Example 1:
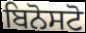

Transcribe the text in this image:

ਬਿਨੋਸਟੋ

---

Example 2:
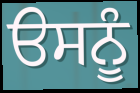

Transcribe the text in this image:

ੳਸਨੂੰ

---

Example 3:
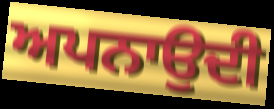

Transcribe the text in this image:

ਅਪਨਾਉਦੀ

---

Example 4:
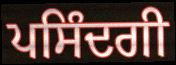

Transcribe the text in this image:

ਪਸਿੰਦਗੀ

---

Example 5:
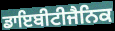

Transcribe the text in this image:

ਡਾਇਬੀਟੀਜੈਨਿਕ